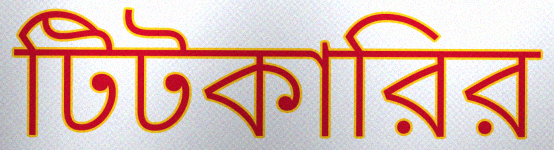
টিটকারির